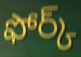
ఫోర్క్